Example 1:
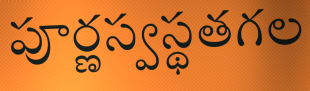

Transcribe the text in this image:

పూర్ణస్వస్థతగల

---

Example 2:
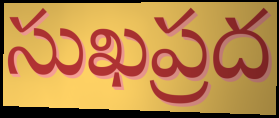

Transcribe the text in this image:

సుఖప్రద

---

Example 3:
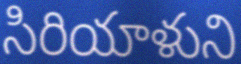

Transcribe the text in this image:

సిరియాళుని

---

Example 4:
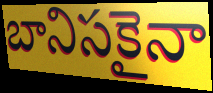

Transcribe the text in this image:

బానిసకైనా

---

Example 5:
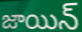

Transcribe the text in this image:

జాయిన్